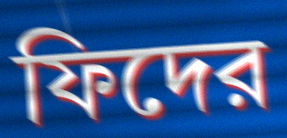
ফিদের